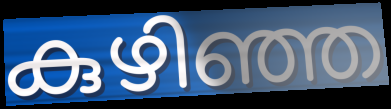
കുഴിഞ്ഞ